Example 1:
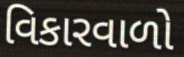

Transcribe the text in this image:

વિકારવાળો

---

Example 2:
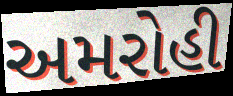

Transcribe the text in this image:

અમરોહી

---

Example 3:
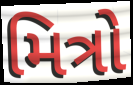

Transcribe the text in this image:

મિત્રો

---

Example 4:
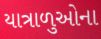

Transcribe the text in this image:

યાત્રાળુઓના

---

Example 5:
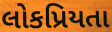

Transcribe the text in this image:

લોકપ્રિયતા